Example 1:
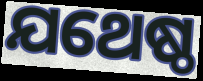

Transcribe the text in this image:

ଯଥେଷ୍ଠ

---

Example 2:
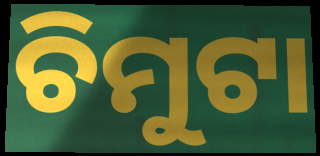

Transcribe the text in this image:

ଚିମୁଟା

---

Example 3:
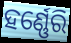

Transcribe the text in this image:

ହର୍ଣ୍ଣେରି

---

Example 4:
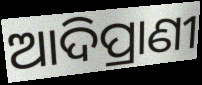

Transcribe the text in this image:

ଆଦିପ୍ରାଣୀ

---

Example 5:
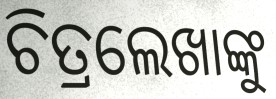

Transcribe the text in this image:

ଚିତ୍ରଲେଖାଙ୍କୁ